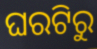
ଘରଟିରୁ